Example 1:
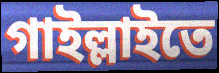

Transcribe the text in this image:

গাইল্লাইতে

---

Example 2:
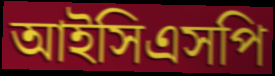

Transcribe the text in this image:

আইসিএসপি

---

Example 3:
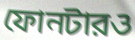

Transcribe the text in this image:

ফোনটারও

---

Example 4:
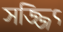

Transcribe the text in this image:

সজ্জিৎ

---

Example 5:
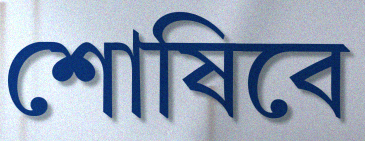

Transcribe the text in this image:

শোষিবে